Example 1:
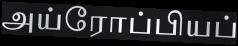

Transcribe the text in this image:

அய்ரோப்பியப்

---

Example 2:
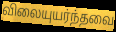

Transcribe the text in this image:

விலையுயர்ந்தவை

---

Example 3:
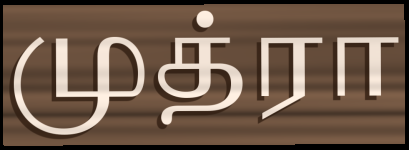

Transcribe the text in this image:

முத்ரா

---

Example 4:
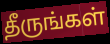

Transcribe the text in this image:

தீருங்கள்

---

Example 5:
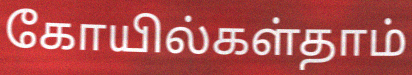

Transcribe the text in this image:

கோயில்கள்தாம்